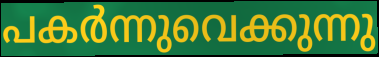
പകർന്നുവെക്കുന്നു